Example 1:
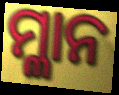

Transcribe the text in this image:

ମ୍ଳାନ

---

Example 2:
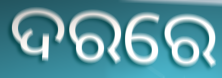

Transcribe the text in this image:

ଦରରେ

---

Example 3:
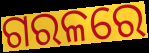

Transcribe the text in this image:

ଗରଳରେ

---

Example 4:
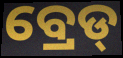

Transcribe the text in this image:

ବ୍ରେଡ୍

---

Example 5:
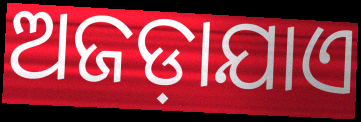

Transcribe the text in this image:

ଅଜଡ଼ାଯାଏ